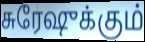
சுரேஷுக்கும்